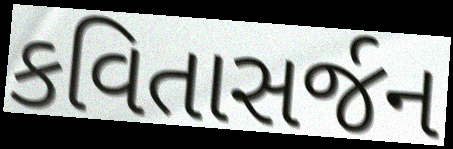
કવિતાસર્જન